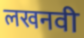
लखनवी